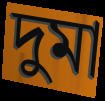
দুমা